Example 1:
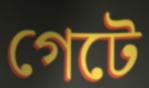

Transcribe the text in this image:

গেটে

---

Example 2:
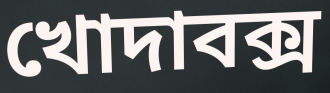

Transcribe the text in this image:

খোদাবক্স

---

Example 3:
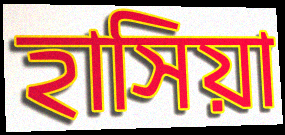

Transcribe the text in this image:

হাসিয়া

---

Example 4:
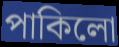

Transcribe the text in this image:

পাকিলো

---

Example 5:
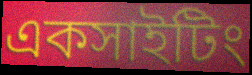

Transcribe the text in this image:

একসাইটিং